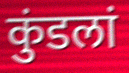
कुंडलां